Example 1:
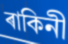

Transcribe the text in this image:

ৰাকিনী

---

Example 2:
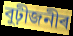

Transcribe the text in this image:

বুঢ়ীজনীৰ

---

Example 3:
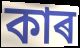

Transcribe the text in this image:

কাৰ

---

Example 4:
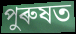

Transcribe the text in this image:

পুৰুষত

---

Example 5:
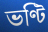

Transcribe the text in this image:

ভণ্টি